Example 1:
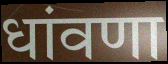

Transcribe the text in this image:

धांवणा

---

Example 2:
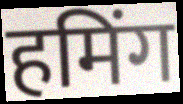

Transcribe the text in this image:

हमिंग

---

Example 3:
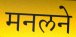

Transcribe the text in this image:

मनलने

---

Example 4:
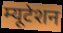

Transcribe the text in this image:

म्यूटेशन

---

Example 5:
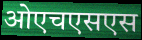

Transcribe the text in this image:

ओएचएसएस